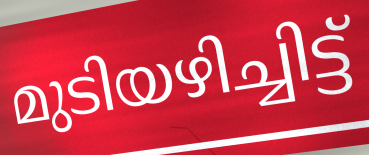
മുടിയഴിച്ചിട്ട്